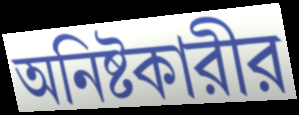
অনিষ্টকারীর